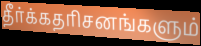
தீர்க்கதரிசனங்களும்